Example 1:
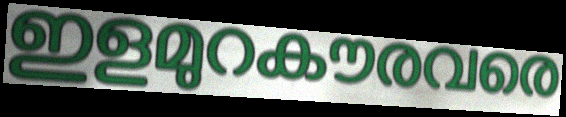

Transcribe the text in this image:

ഇളമുറകൗരവരെ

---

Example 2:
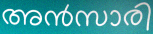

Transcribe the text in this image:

അൻസാരി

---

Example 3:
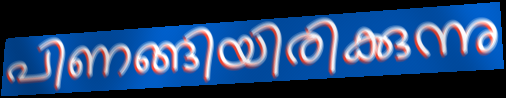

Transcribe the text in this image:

പിണങ്ങിയിരിക്കുന്നു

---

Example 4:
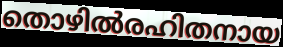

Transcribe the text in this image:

തൊഴിൽരഹിതനായ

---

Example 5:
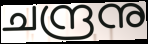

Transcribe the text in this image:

ചന്ദ്രനു